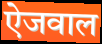
ऐजवाल